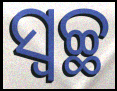
ସ୍ୱଚ୍ଛ